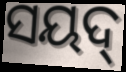
ସୟଦ୍